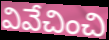
వివేచించి